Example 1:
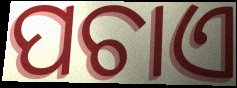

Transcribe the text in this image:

ପଚାଏ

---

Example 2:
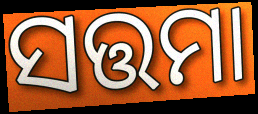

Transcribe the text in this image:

ସତ୍ତମା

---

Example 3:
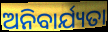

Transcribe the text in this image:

ଅନିବାର୍ଯ୍ୟତା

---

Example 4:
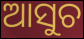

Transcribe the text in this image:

ଆସୁଚ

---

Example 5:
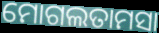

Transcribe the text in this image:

ମୋଗଲତାମସା